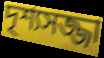
দৃশ্যসজ্জা